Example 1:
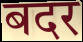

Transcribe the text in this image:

बदर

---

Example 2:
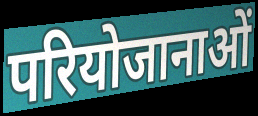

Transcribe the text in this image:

परियोजानाओं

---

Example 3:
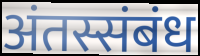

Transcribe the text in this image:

अंतस्संबंध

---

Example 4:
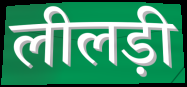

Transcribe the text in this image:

लीलड़ी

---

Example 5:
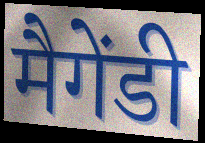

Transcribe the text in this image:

मैगेंडी